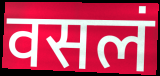
वसलं